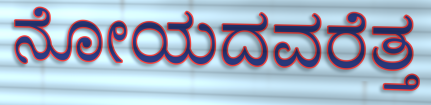
ನೋಯದವರೆತ್ತ